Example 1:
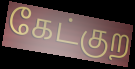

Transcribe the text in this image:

கேட்குற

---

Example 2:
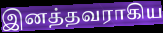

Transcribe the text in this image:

இனத்தவராகிய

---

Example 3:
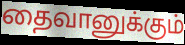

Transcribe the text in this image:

தைவானுக்கும்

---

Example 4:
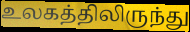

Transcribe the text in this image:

உலகத்திலிருந்து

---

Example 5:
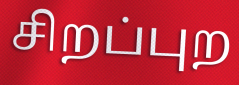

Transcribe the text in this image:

சிறப்புற